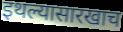
इथल्यासारखाच